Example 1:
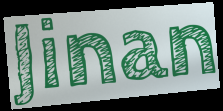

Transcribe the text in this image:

Jinan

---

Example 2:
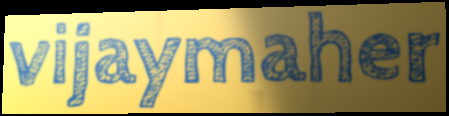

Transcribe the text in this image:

vijaymaher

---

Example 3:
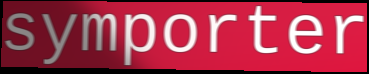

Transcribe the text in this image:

symporter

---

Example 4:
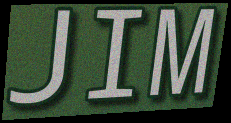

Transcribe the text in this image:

JIM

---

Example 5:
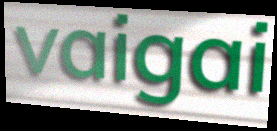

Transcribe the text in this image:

vaigai